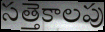
సత్తెకాలపు